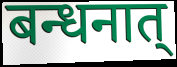
बन्धनात्